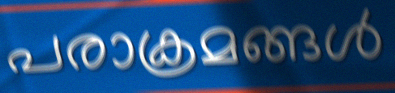
പരാക്രമങ്ങൾ